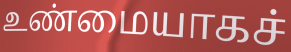
உண்மையாகச்